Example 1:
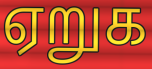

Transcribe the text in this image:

ஏறுக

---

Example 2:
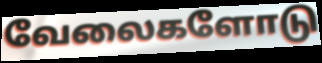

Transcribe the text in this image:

வேலைகளோடு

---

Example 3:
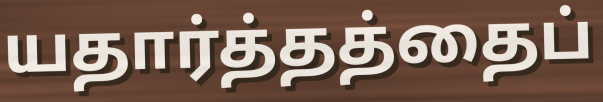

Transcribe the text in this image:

யதார்த்தத்தைப்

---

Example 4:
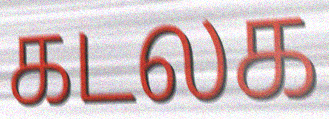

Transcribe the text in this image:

கடலக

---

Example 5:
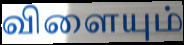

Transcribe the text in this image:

விளையும்